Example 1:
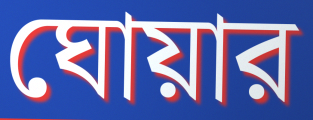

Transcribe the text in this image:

ঘোয়ার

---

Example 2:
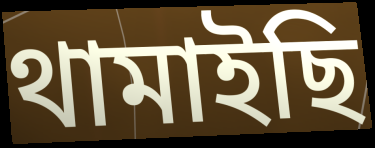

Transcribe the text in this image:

থামাইছি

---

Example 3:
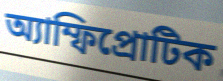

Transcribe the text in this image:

অ্যাম্ফিপ্রোটিক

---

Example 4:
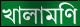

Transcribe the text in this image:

খালামণি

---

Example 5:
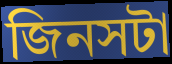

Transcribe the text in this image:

জিনসটা